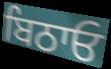
ਬਿਠਾਓ